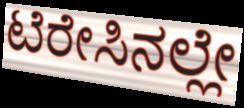
ಟೆರೇಸಿನಲ್ಲೇ